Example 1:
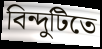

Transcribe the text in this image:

বিন্দুটিতে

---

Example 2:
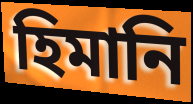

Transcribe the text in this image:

হিমানি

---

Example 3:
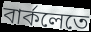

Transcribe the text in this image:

বার্কলেতে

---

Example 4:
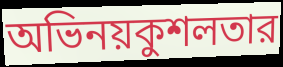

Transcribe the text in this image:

অভিনয়কুশলতার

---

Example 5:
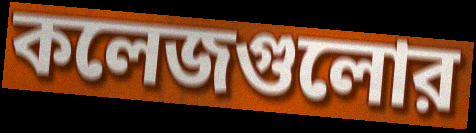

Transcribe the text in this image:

কলেজগুলোর